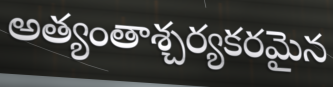
అత్యంతాశ్చర్యకరమైన